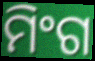
ମିଂଗ